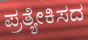
ಪ್ರತ್ಯೇಕಿಸದ